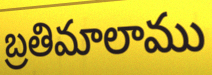
బ్రతిమాలాము